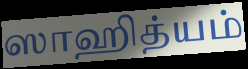
ஸாஹித்யம்